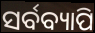
ସର୍ବବ୍ୟାପି